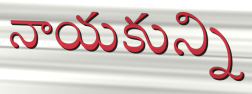
నాయకున్ని